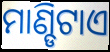
ମାଣ୍ଡିଟାଏ